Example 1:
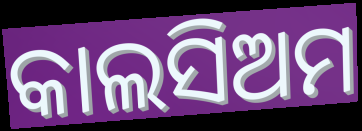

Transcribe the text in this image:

କାଲସିଅମ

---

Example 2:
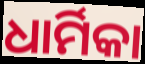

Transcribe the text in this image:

ଧାର୍ମିକା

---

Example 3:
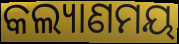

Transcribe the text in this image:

କଲ୍ୟାଣମୟ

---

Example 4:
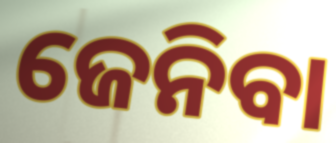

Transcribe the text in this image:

ଜେନିବା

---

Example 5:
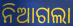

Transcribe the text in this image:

ନିଆଗଲା